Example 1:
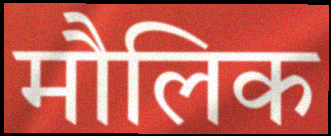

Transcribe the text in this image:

मौलिक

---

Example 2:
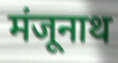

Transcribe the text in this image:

मंजूनाथ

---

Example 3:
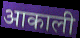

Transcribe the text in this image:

आकाली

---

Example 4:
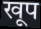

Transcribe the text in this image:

खूप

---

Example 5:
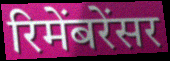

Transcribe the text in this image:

रिमेंबरेंसर